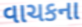
વાચકના